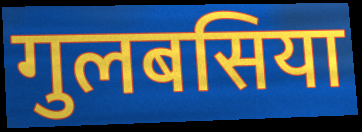
गुलबसिया